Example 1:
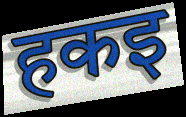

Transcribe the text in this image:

हकइ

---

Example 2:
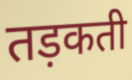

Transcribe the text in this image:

तड़कती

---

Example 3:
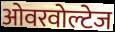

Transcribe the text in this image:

ओवरवोल्टेज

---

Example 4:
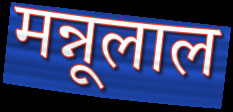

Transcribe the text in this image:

मन्नूलाल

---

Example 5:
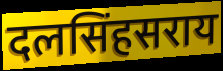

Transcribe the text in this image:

दलसिंहसराय